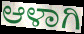
ಆಳಾಗಿ